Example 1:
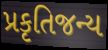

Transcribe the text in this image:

પ્રકૃતિજન્ય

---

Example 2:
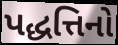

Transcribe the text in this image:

પદ્ધત્તિનો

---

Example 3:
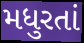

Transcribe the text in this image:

મધુરતાં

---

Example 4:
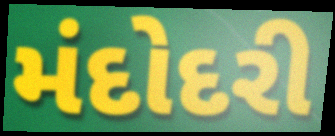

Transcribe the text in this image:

મંદોદરી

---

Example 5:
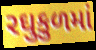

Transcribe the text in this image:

રઘુકુળમાં